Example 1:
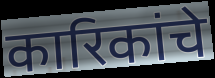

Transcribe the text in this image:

कारिकांचे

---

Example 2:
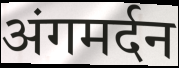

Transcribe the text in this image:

अंगमर्दन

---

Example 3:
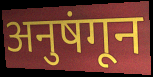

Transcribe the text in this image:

अनुषंगून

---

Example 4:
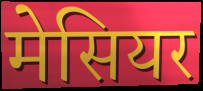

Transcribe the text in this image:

मेसियर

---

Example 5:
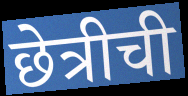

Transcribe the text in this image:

छेत्रीची